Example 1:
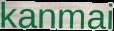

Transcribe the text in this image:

kanmai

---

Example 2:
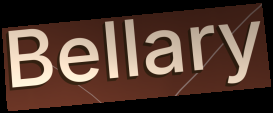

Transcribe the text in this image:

Bellary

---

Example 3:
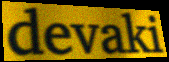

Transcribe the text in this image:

devaki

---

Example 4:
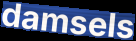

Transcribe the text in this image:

damsels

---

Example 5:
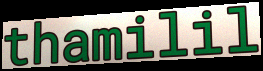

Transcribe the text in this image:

thamilil